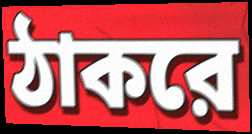
ঠাকরে